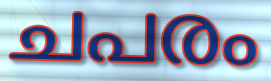
ചപരം